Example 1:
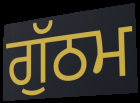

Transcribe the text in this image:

ਗੁੱਠਮ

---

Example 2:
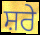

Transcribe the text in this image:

ਸ਼ਰੇ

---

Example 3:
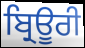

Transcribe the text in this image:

ਬ੍ਰਿਊਰੀ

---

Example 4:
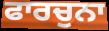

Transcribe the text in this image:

ਫਾਰਚੁਨਾ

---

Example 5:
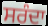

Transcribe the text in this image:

ਸਰੰਦਾ